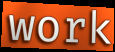
work